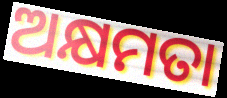
ଅକ୍ଷମତା